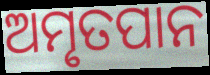
ଅମୃତପାନ